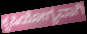
ಕೃಷಿಯೋಗ್ಯವಾಗಿ